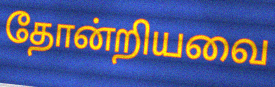
தோன்றியவை